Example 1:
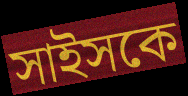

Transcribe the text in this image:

সাইসকে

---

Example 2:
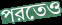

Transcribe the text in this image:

পরতেও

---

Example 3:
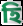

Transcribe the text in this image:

হি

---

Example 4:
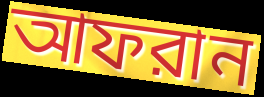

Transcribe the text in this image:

আফরান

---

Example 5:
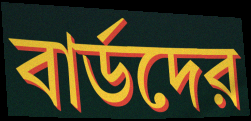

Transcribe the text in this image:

বার্ডদের